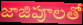
జాజిపూలతో